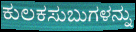
ಕುಲಕಸುಬುಗಳನ್ನು